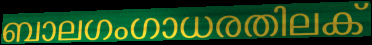
ബാലഗംഗാധരതിലക്